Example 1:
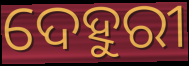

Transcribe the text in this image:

ଦେହୁରୀ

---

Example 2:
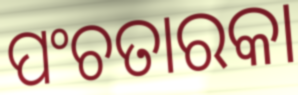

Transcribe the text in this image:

ପଂଚତାରକା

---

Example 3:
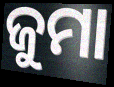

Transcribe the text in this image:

ଜୁମା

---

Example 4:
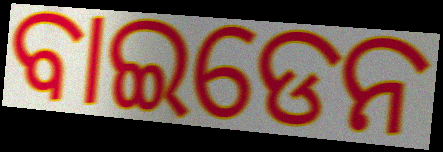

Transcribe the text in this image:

ବାଇଡେନ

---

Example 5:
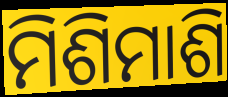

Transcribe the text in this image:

ମିଶିମାଶି